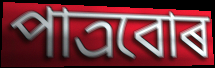
পাত্ৰবোৰ